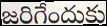
జరిగేందుకు